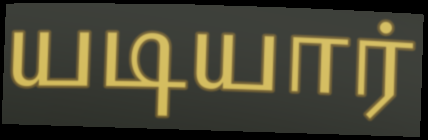
யடியார்